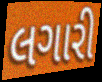
લગારી